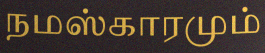
நமஸ்காரமும்